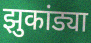
झुकांड्या